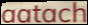
aatach